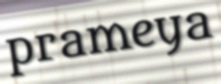
prameya